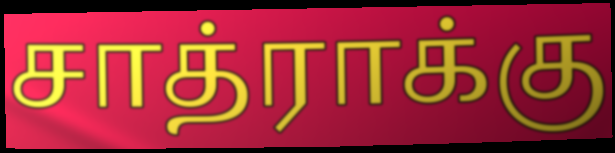
சாத்ராக்கு